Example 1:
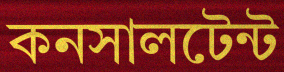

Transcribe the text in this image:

কনসালটেন্ট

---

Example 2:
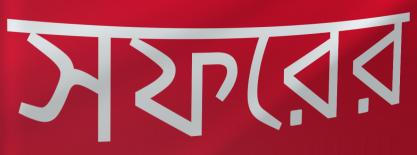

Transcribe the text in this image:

সফরের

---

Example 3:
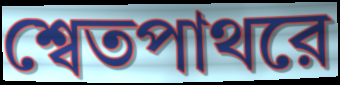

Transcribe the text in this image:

শ্বেতপাথরে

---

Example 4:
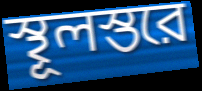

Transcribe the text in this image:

স্থূলস্তরে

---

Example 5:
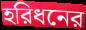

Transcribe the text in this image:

হরিধনের